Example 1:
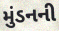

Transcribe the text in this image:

મુંડનની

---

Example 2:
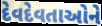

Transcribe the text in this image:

દેવદેવતાઓને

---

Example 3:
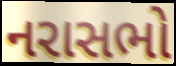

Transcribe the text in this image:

નરાસભો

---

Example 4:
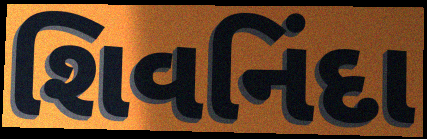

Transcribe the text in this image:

શિવનિંદા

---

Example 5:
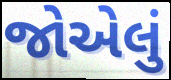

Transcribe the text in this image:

જોએલું